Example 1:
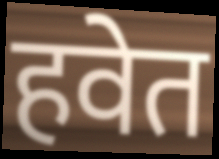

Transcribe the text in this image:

हवेत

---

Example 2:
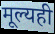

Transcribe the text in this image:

मूल्यही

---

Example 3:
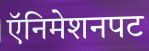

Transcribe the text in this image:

ऍनिमेशनपट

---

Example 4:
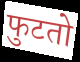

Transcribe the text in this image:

फुटतो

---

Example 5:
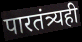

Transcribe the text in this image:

पारतंत्र्यही